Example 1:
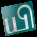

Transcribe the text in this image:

யி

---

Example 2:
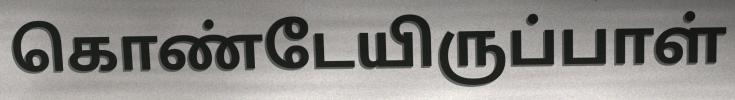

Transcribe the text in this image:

கொண்டேயிருப்பாள்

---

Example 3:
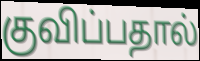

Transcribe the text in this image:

குவிப்பதால்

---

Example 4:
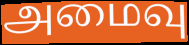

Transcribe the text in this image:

அமைவு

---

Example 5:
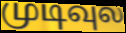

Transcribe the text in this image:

முடிவுல